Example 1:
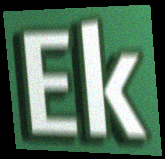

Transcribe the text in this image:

Ek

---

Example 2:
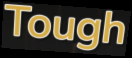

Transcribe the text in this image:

Tough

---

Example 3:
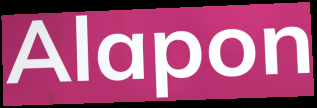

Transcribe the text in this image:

Alapon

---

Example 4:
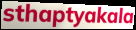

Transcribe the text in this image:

sthaptyakala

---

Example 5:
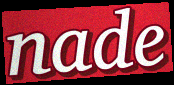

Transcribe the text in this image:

nade